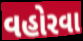
વહોરવા